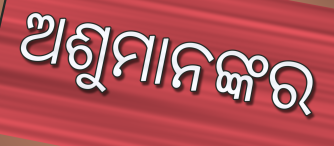
ଅଶୁମାନଙ୍କର